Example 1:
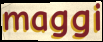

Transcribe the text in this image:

maggi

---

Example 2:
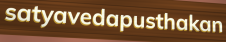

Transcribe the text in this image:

satyavedapusthakan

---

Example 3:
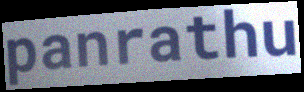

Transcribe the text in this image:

panrathu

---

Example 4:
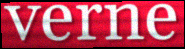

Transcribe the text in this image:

verne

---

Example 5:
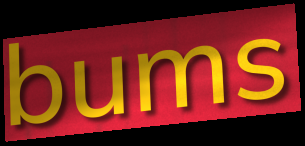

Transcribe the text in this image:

bums